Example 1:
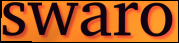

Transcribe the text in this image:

swaro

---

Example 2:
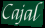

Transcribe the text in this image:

Cajal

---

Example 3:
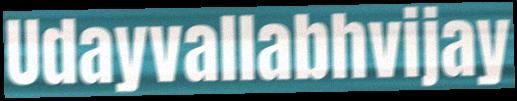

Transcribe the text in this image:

Udayvallabhvijay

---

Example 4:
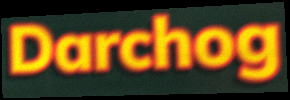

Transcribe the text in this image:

Darchog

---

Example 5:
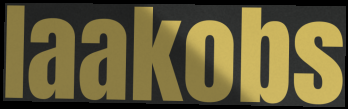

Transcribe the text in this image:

Iaakobs